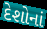
દેશોનાં